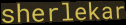
sherlekar